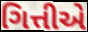
ગિત્તીએ